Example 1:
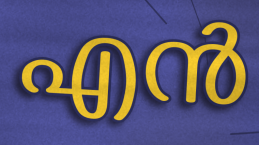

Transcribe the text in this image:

എൻ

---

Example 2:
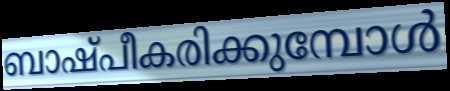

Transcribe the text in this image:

ബാഷ്പീകരിക്കുമ്പോൾ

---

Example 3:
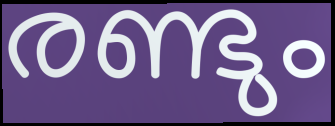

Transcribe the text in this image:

രണ്ടും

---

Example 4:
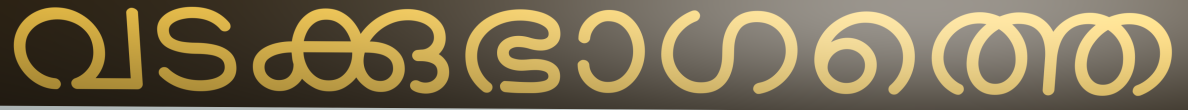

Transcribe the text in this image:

വടക്കുഭാഗത്തെ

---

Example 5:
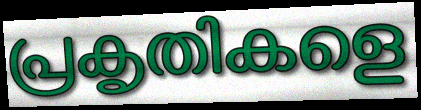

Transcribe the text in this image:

പ്രകൃതികളെ